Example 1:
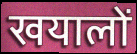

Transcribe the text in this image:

खयालों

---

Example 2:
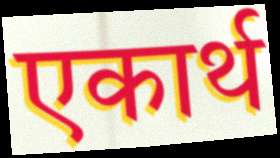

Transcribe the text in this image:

एकार्थ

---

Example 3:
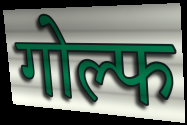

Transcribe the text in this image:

गोल्फ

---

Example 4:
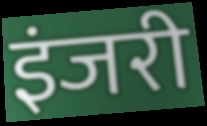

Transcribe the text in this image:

इंजरी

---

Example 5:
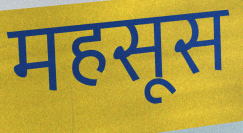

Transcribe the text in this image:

महसूस